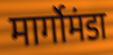
मार्गोमंडा